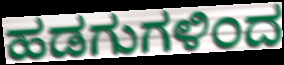
ಹಡಗುಗಳಿಂದ